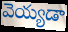
వెయ్యడా